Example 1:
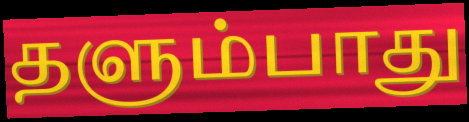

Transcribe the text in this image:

தளும்பாது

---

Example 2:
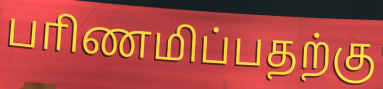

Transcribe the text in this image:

பரிணமிப்பதற்கு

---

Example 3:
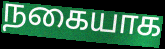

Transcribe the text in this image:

நகையாக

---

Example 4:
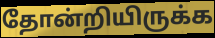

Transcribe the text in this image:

தோன்றியிருக்க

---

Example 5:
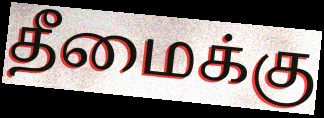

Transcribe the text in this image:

தீமைக்கு